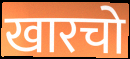
खारचो